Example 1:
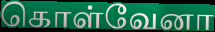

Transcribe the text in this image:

கொள்வேனா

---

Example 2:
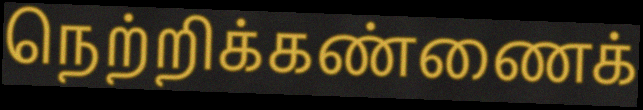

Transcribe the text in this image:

நெற்றிக்கண்ணைக்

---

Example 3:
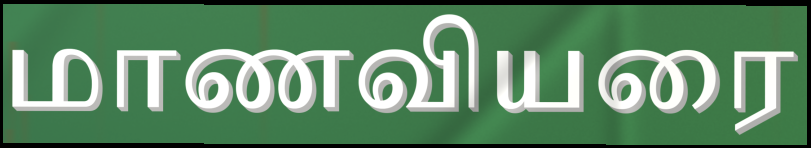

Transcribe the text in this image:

மாணவியரை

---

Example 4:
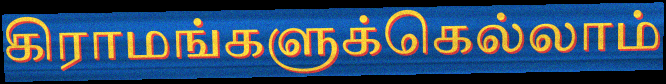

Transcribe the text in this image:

கிராமங்களுக்கெல்லாம்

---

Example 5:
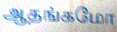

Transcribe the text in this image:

ஆதங்கமோ